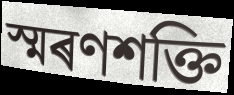
স্মৰণশক্তি